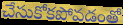
చేసుకోకపోవడంతో